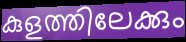
കുളത്തിലേക്കും